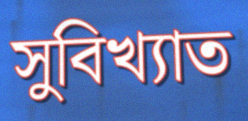
সুবিখ্যাত